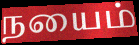
நயைம்